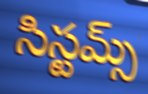
సిస్టమ్స్